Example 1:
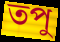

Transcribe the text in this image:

তপু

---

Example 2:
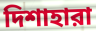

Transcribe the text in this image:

দিশাহারা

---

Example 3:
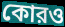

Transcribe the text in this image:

কোরও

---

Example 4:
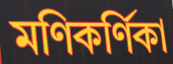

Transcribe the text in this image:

মণিকর্ণিকা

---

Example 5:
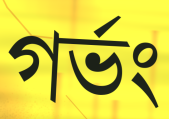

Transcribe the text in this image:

গর্ভং